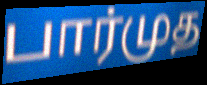
பார்முத